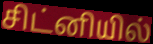
சிட்னியில்